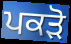
ਪਕੜੋ